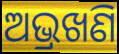
ଅଭ୍ରଖଣି